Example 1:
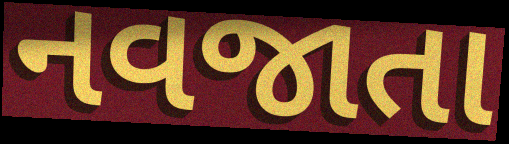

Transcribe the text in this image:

નવજાતા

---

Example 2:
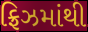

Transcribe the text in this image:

ફ્રિઝમાંથી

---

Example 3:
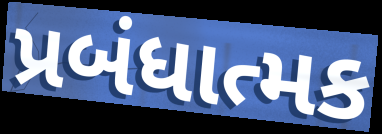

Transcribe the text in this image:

પ્રબંધાત્મક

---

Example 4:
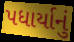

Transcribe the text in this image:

પધાર્યાનું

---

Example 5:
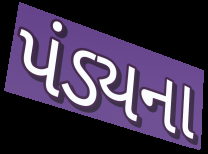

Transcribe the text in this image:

પંડ્યના